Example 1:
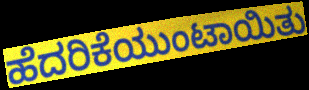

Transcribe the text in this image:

ಹೆದರಿಕೆಯುಂಟಾಯಿತು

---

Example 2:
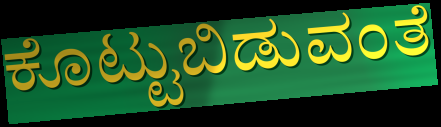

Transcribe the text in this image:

ಕೊಟ್ಟುಬಿಡುವಂತೆ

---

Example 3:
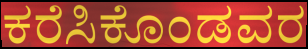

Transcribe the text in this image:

ಕರೆಸಿಕೊಂಡವರ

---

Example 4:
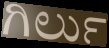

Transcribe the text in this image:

ಗಿರ್ಲು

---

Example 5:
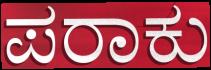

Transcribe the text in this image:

ಪರಾಕು